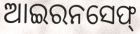
ଆଇରନସେଫ୍